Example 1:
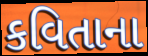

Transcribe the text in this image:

કવિતાના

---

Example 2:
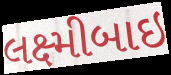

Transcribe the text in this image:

લક્ષ્મીબાઇ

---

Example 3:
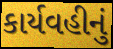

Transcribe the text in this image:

કાર્યવહીનું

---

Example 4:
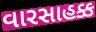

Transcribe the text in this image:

વારસાહક્ક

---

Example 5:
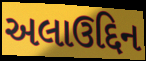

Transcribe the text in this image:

અલાઉદ્દિન